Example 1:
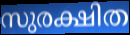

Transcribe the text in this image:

സുരക്ഷിത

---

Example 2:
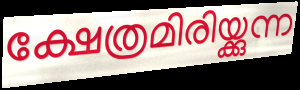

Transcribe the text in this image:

ക്ഷേത്രമിരിയ്ക്കുന്ന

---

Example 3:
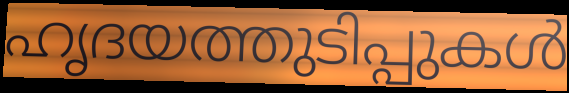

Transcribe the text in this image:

ഹൃദയത്തുടിപ്പുകൾ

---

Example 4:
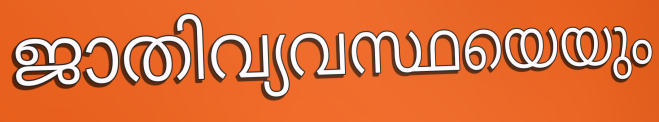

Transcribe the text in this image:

ജാതിവ്യവസ്ഥയെയും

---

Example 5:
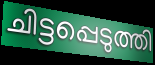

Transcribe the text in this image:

ചിട്ടപ്പെടുത്തി